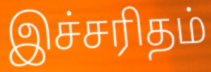
இச்சரிதம்